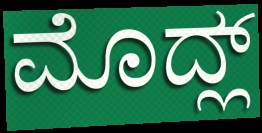
ಮೊದ್ಲ್